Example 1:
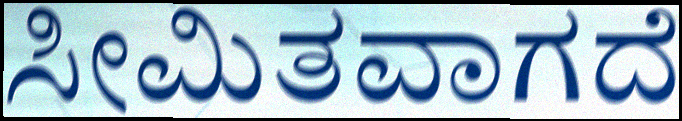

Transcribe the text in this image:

ಸೀಮಿತವಾಗದೆ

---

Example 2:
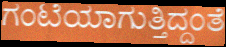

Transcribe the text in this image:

ಗಂಟೆಯಾಗುತ್ತಿದ್ದಂತೆ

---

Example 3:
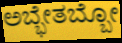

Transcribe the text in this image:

ಅಬ್ಭೇತಬ್ಬೋ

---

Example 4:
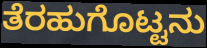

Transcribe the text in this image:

ತೆರಹುಗೊಟ್ಟನು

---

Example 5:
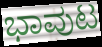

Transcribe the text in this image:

ಭಾವುಟ